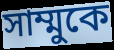
সাম্মুকে